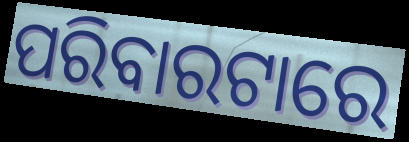
ପରିବାରଟାରେ